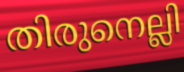
തിരുനെല്ലി